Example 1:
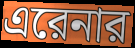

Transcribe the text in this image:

এরেনার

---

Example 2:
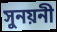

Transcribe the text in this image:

সুনয়নী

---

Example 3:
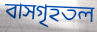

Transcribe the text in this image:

বাসগৃহতল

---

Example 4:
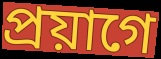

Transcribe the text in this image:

প্রয়াগে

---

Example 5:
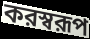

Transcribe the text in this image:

করস্বরূপ